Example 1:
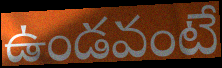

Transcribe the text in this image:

ఉండవంటే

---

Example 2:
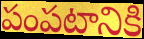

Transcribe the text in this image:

పంపటానికి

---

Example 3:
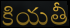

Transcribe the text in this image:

కియతీ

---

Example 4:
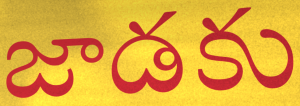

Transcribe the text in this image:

జాడకు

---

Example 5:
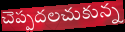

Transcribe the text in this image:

చెప్పదలచుకున్న